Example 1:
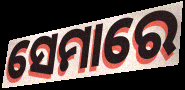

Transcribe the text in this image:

ସେମାରେ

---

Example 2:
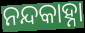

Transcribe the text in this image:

ନନ୍ଦକାହ୍ନା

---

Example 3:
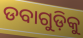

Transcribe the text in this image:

ଡବାଗୁଡ଼ିକୁ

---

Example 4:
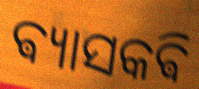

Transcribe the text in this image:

ଵ୍ୟାସକଵି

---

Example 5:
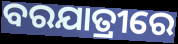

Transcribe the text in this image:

ବରଯାତ୍ରୀରେ